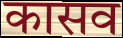
कासव